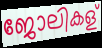
ജോലികള്